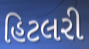
હિટલરી